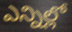
ఎన్నిల్లో